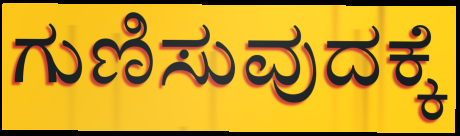
ಗುಣಿಸುವುದಕ್ಕೆ